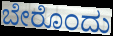
ಬೇರೊಂದು